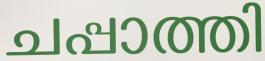
ചപ്പാത്തി